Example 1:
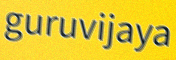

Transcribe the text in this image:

guruvijaya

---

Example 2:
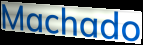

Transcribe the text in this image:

Machado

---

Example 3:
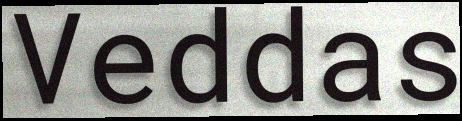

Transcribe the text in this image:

Veddas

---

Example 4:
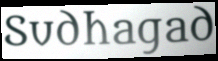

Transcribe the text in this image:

Sudhagad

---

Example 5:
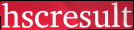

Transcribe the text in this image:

hscresult